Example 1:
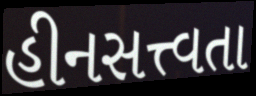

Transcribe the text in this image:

હીનસત્ત્વતા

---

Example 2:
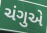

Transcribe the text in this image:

ચંગુએ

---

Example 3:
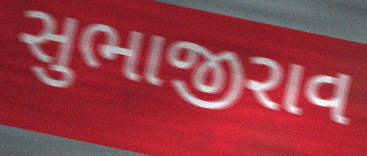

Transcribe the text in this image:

સુભાજીરાવ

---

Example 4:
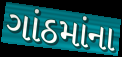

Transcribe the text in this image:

ગાંઠમાંના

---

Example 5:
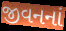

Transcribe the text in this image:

જીવનનાં